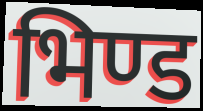
भिण्‍ड